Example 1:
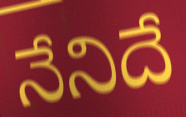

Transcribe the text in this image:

నేనిదే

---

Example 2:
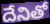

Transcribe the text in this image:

దేనితో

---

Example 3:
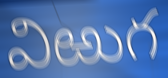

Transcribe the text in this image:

విఱుగ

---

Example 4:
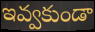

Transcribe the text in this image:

ఇవ్వకుండా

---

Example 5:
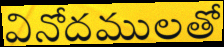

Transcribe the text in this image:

వినోదములతో